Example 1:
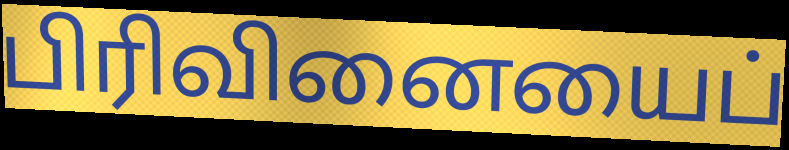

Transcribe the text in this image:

பிரிவினையைப்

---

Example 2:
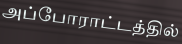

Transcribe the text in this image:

அப்போராட்டத்தில்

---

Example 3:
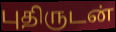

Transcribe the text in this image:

புதிருடன்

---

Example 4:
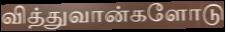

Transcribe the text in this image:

வித்துவான்களோடு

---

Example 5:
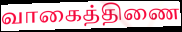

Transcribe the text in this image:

வாகைத்திணை